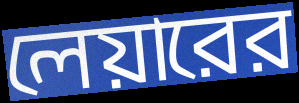
লেয়ারের